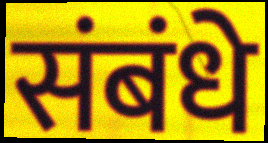
संबंधे